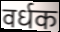
वर्धक